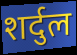
शर्दुल